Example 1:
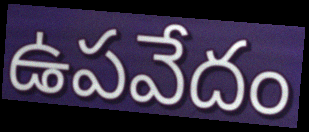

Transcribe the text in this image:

ఉపవేదం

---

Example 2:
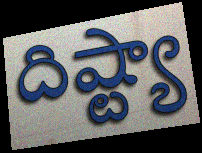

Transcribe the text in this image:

దిష్ట్యా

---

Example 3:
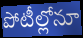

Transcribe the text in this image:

పోటీల్లోనూ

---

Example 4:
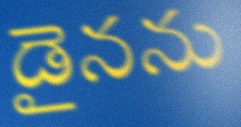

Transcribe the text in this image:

డైనను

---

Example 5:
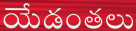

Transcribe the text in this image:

యేడంతలు